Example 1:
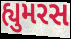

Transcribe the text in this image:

હ્યુમરસ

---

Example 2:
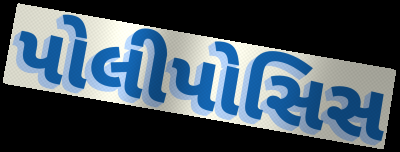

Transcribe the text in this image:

પોલીપોસિસ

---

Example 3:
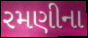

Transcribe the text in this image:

રમણીના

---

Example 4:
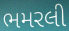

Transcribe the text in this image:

ભમરલી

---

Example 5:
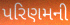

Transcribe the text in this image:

પરિણમની